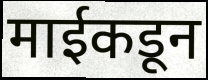
माईकडून